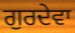
ਗੁਰਦੇਵਾ